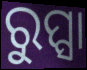
ରୁପ୍ସା